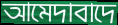
আমেদাবাদে